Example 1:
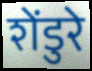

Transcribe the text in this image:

शेंडुरे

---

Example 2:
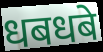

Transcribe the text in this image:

धबधबे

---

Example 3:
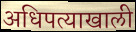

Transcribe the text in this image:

अधिपत्याखाली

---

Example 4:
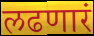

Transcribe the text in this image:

लढणारं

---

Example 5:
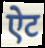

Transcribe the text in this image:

ऐट